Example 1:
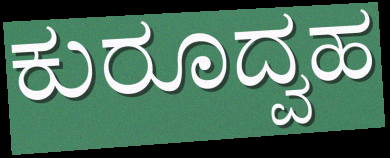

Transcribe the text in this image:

ಕುರೂದ್ವಹ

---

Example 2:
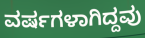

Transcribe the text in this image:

ವರ್ಷಗಳಾಗಿದ್ದವು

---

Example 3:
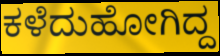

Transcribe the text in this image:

ಕಳೆದುಹೋಗಿದ್ದ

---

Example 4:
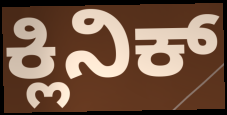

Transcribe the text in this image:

ಕ್ಲಿನಿಕ್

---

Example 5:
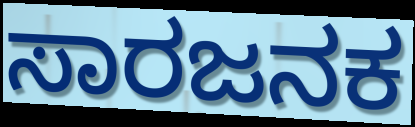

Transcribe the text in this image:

ಸಾರಜನಕ